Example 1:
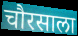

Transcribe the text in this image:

चौरसाला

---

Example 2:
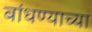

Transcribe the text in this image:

बांधण्याच्या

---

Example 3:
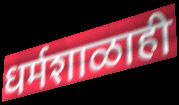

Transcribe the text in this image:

धर्मशाळाही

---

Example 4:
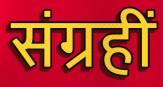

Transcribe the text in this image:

संग्रहीं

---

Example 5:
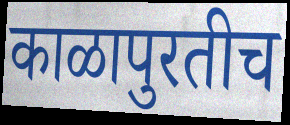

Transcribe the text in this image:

काळापुरतीच